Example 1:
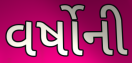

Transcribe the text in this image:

વર્ષોની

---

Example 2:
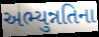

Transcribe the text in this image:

અભ્યુન્નતિના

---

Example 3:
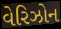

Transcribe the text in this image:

વેરિઝોન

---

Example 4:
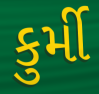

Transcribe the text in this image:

કુર્મી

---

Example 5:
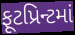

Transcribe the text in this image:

ફૂટપ્રિન્ટમાં